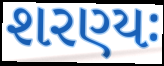
શરણ્યઃ